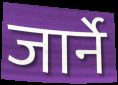
जार्ने